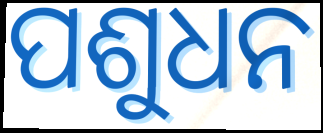
ପଶୁଧନ